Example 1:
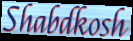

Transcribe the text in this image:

Shabdkosh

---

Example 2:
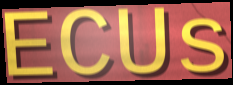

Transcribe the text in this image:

ECUs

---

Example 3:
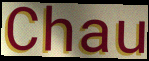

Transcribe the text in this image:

Chau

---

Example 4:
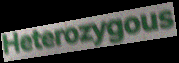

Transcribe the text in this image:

Heterozygous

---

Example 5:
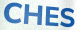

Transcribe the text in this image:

CHES